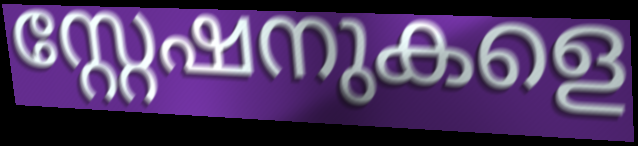
സ്റ്റേഷനുകളെ